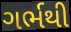
ગર્ભથી